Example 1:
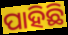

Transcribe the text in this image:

ପାହିଛି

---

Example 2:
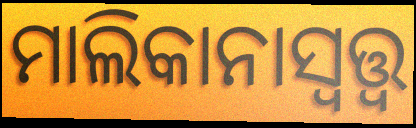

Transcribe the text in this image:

ମାଲିକାନାସ୍ୱତ୍ତ୍ୱ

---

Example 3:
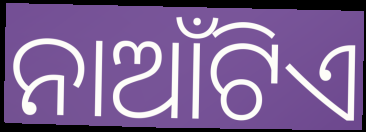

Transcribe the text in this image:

ନାଆଁଟିଏ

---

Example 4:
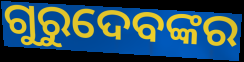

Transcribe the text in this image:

ଗୁରୁଦେବଙ୍କର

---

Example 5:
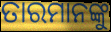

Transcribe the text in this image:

ତାରମାନଙ୍କୁ